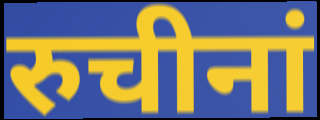
रुचीनां